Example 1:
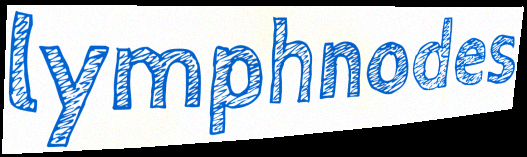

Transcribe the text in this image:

lymphnodes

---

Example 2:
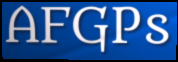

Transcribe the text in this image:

AFGPs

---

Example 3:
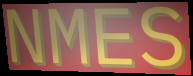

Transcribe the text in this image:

NMES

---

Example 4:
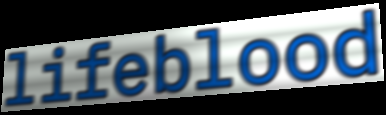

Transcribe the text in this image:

lifeblood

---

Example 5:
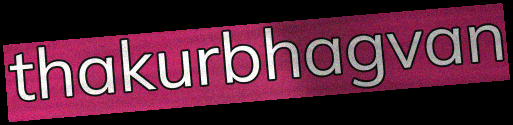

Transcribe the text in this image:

thakurbhagvan